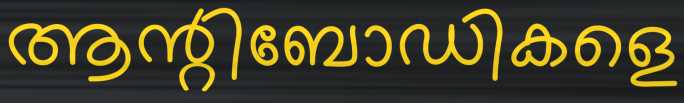
ആന്റിബോഡികളെ